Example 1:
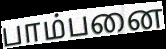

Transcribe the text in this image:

பாம்பனை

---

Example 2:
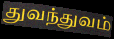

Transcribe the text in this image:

துவந்துவம்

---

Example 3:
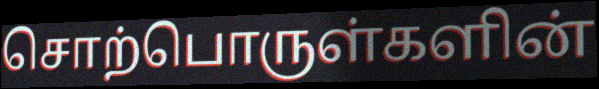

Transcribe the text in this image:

சொற்பொருள்களின்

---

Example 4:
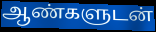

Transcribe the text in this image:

ஆண்களுடன்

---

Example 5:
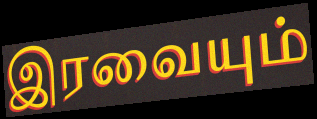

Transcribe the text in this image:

இரவையும்